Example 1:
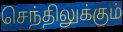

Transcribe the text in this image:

செந்திலுக்கும்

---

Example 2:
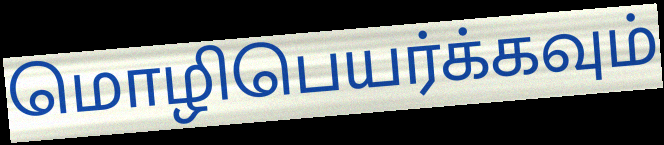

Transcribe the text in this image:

மொழிபெயர்க்கவும்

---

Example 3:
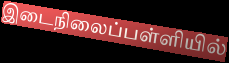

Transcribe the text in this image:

இடைநிலைப்பள்ளியில்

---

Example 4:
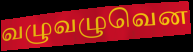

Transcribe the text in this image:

வழுவழுவென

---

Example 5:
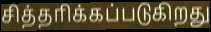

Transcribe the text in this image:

சித்தரிக்கப்படுகிறது